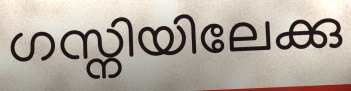
ഗസ്നിയിലേക്കു